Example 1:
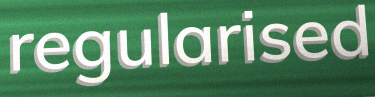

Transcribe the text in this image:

regularised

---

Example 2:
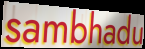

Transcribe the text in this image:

sambhadu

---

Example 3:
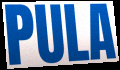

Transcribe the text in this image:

PULA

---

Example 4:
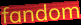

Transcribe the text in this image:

fandom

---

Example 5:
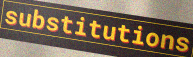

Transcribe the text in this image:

substitutions